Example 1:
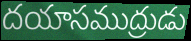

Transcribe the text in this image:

దయాసముద్రుడు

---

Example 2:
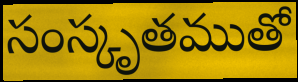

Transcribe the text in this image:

సంస్కృతముతో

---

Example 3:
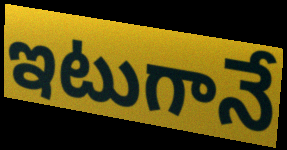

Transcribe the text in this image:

ఇటుగానే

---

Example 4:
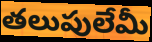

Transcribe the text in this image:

తలుపులేమీ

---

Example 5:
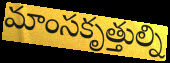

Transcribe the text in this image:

మాంసకృత్తుల్ని